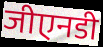
जीएनडी